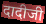
दादीजी